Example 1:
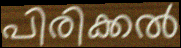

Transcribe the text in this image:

പിരിക്കൽ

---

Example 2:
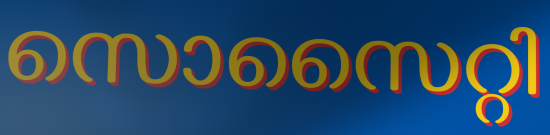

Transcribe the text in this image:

സൊസൈറ്റി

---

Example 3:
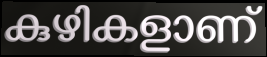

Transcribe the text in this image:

കുഴികളാണ്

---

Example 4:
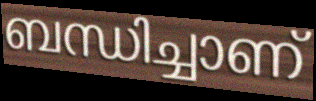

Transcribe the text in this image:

ബന്ധിച്ചാണ്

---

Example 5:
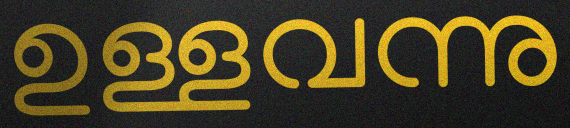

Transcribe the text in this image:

ഉള്ളവന്നു